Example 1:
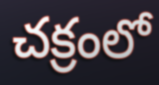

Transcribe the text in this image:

చక్రంలో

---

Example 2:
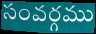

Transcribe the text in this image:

సంవర్గము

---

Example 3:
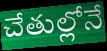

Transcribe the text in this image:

చేతుల్లోనే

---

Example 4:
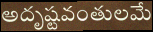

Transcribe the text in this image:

అదృష్టవంతులమే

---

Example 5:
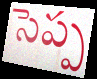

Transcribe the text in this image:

సెప్ప